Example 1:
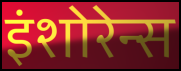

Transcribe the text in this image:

इंशोरेन्स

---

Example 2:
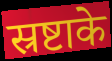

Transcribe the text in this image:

स्रष्टाके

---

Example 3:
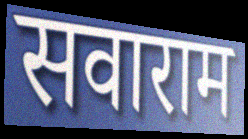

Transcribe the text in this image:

सवाराम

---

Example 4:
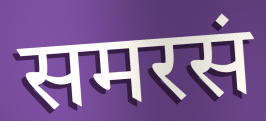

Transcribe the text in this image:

समरसं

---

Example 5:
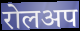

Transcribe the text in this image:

रोलअप